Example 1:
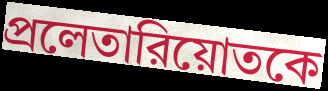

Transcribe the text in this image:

প্রলেতারিয়োতকে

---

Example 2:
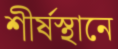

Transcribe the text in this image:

শীর্ষস্থানে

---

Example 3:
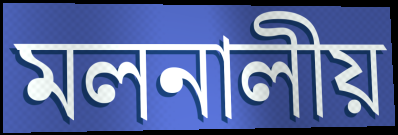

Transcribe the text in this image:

মলনালীয়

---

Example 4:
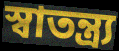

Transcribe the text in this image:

স্বাতন্ত্র্য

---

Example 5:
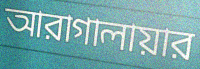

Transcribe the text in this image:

আরাগালায়ার